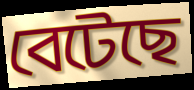
বেটেছে